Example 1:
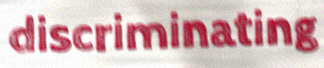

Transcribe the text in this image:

discriminating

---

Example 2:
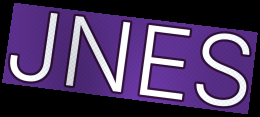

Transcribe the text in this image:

JNES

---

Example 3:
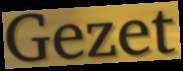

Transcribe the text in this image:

Gezet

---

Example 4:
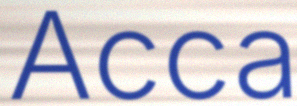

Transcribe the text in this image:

Acca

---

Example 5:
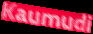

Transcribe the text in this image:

Kaumudi